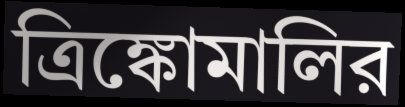
ত্রিঙ্কোমালির